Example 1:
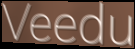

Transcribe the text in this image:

Veedu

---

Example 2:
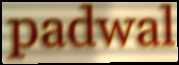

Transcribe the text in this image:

padwal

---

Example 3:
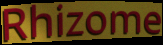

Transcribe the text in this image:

Rhizome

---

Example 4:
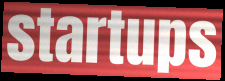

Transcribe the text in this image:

startups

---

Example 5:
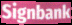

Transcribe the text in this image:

Signbank